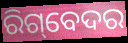
ରିଗ୍‌ବେଦର